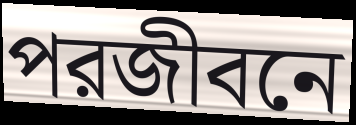
পরজীবনে